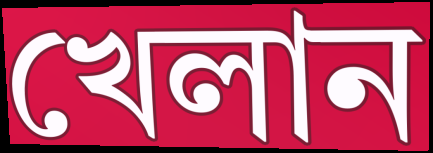
খেলান